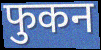
फुकन